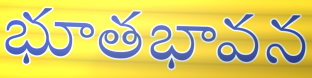
భూతభావన